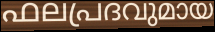
ഫലപ്രദവുമായ